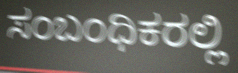
ಸಂಬಂಧಿಕರಲ್ಲಿ